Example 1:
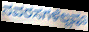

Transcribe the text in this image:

ನವರಸಗಳೆಲ್ಲವೂ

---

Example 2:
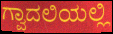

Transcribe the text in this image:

ಗ್ವಾದಲಿಯಲ್ಲಿ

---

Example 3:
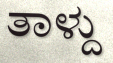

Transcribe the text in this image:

ತಾಳ್ದು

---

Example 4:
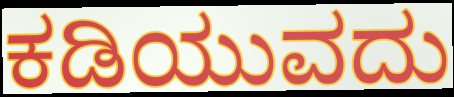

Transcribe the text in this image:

ಕಡಿಯುವದು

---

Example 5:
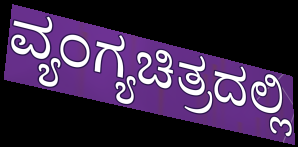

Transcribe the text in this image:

ವ್ಯಂಗ್ಯಚಿತ್ರದಲ್ಲಿ